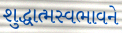
શુદ્ધાત્મસ્વભાવને